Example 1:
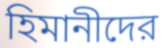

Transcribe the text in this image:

হিমানীদের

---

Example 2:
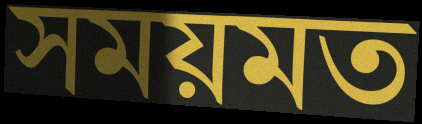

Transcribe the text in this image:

সময়মত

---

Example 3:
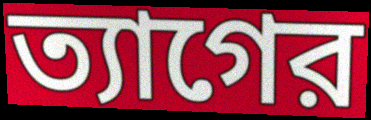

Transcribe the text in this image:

ত্যাগের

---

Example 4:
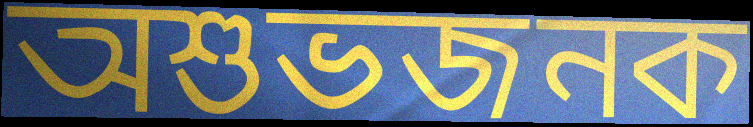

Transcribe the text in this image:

অশুভজনক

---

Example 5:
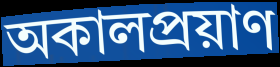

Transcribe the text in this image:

অকালপ্রয়াণ